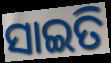
ସାଇତି